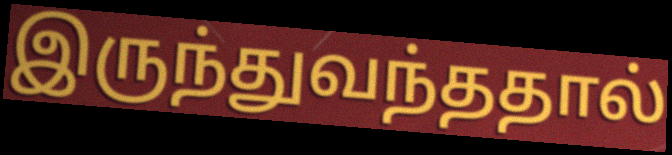
இருந்துவந்ததால்